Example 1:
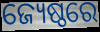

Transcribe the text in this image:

ଜ୍ୟେଷ୍ଠରେ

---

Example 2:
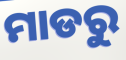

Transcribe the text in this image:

ମାଡରୁ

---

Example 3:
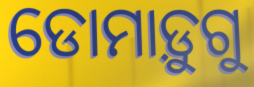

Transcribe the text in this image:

ଡୋମାଡ଼ୁଗୁ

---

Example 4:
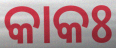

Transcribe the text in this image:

କାକଃ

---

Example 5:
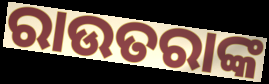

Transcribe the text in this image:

ରାଉତରାଙ୍କ